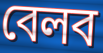
বেলব